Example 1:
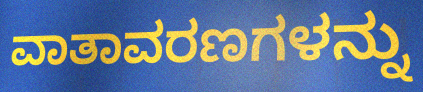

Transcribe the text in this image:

ವಾತಾವರಣಗಳನ್ನು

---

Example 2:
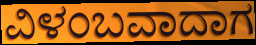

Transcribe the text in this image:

ವಿಳಂಬವಾದಾಗ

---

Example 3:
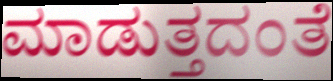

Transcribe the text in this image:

ಮಾಡುತ್ತದಂತೆ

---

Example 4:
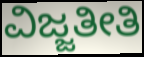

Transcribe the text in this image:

ವಿಜ್ಜತೀತಿ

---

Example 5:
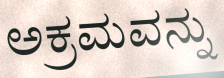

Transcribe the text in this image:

ಅಕ್ರಮವನ್ನು